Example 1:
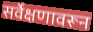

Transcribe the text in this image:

सर्वेक्षणावरून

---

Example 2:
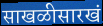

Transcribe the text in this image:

साखळीसारखं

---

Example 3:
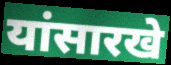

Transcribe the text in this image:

यांसारखे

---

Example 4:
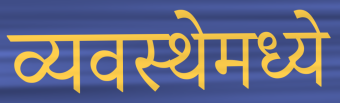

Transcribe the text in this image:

व्यवस्थेमध्ये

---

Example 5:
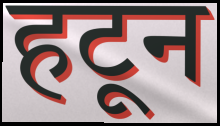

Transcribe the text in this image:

हटून